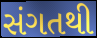
સંગતથી